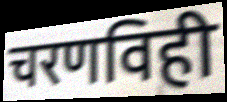
चरणविही